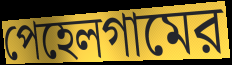
পেহেলগামের